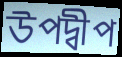
উপদ্বীপ